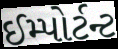
ઈમ્પોર્ટન્ટ